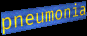
pneumonia